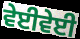
ਵੇਈਵੇਈ